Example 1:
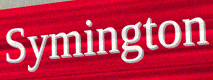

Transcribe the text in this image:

Symington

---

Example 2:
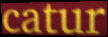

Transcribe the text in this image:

catur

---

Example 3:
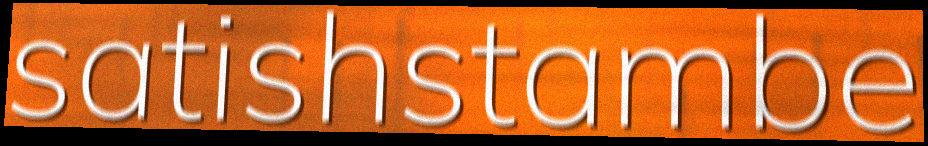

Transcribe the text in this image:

satishstambe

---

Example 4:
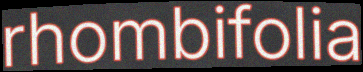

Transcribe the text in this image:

rhombifolia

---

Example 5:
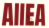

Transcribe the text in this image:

AIIEA